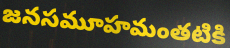
జనసమూహమంతటికి